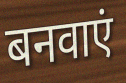
बनवाएं